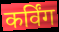
कर्विंग